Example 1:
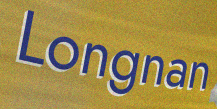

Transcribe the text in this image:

Longnan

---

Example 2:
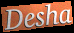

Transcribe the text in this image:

Desha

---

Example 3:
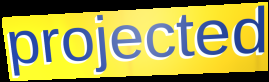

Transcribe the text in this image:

projected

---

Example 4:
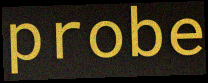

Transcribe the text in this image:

probe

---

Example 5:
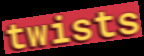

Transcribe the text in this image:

twists